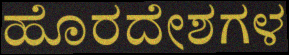
ಹೊರದೇಶಗಳ